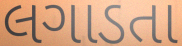
લગાડતા